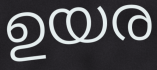
ഉയര